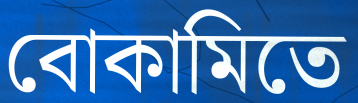
বোকামিতে